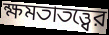
ক্ষমতাতত্ত্বের